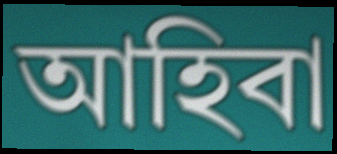
আহিবা